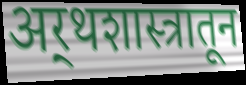
अर्थशास्त्रातून